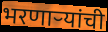
भरणाऱ्यांची